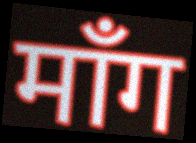
माँग